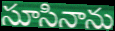
సూసినాను